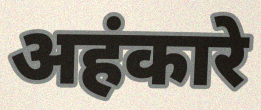
अहंकारे